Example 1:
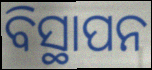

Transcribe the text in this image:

ବିସ୍ଥାପନ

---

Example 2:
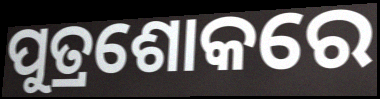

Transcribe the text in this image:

ପୁତ୍ରଶୋକରେ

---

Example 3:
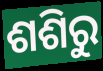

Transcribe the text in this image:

ଶଶିରୁ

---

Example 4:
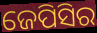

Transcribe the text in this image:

ଜେପିସିର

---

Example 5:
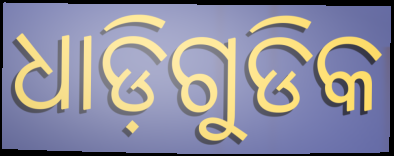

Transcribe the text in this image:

ଧାଡ଼ିଗୁଡିକ